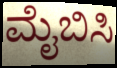
ಮೈಬಿಸಿ